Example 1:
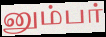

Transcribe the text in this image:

னும்பர்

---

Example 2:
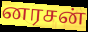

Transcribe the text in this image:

னரசன்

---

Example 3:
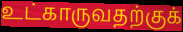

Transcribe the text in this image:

உட்காருவதற்குக்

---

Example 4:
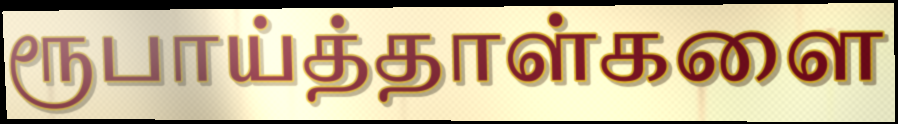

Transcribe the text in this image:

ரூபாய்த்தாள்களை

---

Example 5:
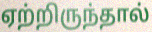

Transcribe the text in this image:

ஏற்றிருந்தால்